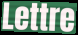
Lettre